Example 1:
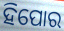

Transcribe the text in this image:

ହିପୋର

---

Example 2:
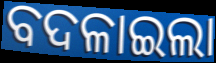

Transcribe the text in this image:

ବଦଳାଇଲା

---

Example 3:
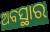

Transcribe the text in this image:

ଅବସ୍ଥାର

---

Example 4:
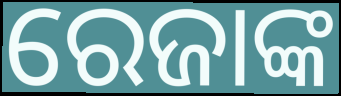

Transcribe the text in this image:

ରେଜାଙ୍କ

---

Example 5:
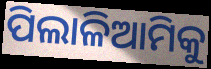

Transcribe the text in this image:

ପିଲାଳିଆମିକୁ